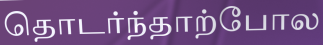
தொடர்ந்தாற்போல